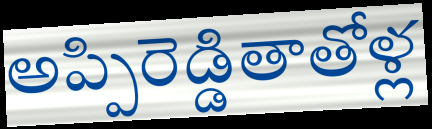
అప్పిరెడ్డితాతోళ్ల